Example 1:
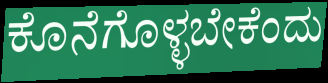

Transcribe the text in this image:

ಕೊನೆಗೊಳ್ಳಬೇಕೆಂದು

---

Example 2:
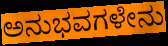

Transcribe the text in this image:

ಅನುಭವಗಳೇನು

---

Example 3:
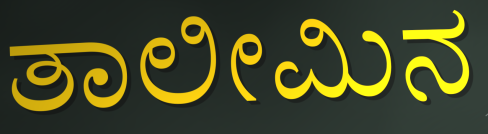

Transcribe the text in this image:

ತಾಲೀಮಿನ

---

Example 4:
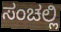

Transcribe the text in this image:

ಸಂಚಲ್ಲಿ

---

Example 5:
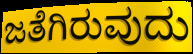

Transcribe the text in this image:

ಜತೆಗಿರುವುದು